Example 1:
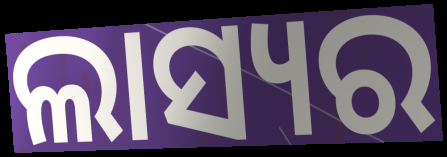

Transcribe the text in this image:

ଲାସ୍ୟର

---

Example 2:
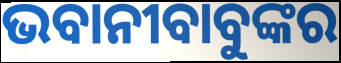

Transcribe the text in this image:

ଭବାନୀବାବୁଙ୍କର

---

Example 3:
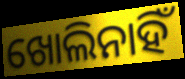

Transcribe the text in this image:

ଖୋଲିନାହିଁ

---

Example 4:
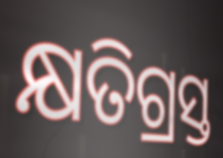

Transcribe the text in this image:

କ୍ଷତିଗ୍ରସ୍ତ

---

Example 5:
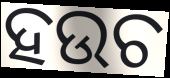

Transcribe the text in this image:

ହଉଚ